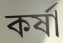
কর্ষা